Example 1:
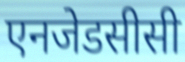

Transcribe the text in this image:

एनजेडसीसी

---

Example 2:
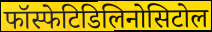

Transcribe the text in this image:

फॉस्फेटिडिलिनोसिटोल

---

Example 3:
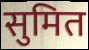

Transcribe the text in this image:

सुमित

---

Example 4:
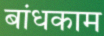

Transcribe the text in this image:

बांधकाम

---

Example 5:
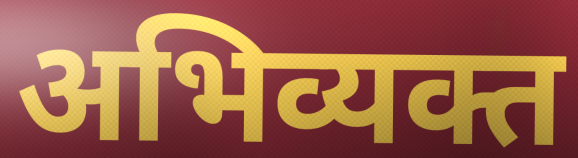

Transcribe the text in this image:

अभिव्यक्त